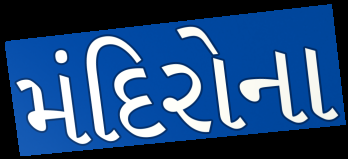
મંદિરોના